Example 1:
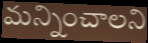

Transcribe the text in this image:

మన్నించాలని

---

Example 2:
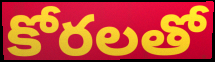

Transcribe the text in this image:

కోరలతో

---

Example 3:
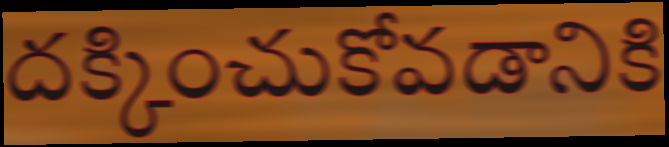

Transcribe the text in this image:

దక్కించుకోవడానికి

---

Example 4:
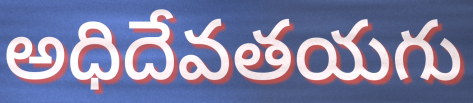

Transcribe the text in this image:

అధిదేవతయగు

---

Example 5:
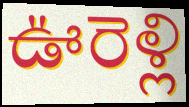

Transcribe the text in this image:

ఊరెళ్లి